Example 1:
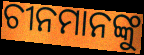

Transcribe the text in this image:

ଚୀନମାନଙ୍କୁ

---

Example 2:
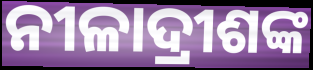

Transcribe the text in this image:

ନୀଳାଦ୍ରୀଶଙ୍କ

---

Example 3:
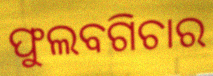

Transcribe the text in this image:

ଫୁଲବଗିଚାର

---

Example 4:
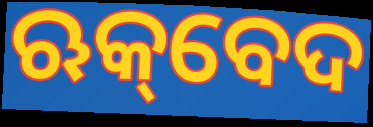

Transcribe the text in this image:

ଋକ୍‌ବେଦ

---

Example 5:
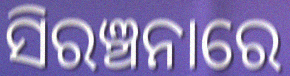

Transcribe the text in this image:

ସିରଞ୍ଚନାରେ